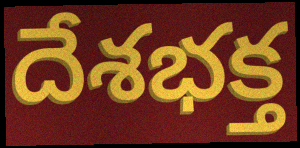
దేశభక్త